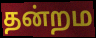
தன்றம